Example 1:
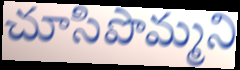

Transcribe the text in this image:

చూసిపొమ్మని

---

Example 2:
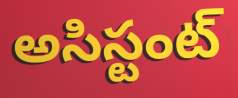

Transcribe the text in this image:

అసిస్టంట్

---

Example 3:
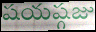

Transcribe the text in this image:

షయష్గజు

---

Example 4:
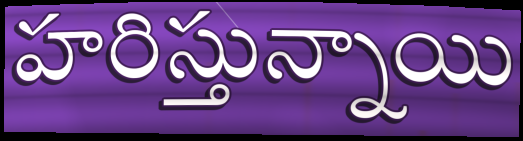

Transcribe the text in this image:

హరిస్తున్నాయి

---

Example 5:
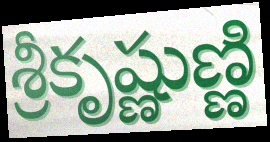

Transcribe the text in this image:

శ్రీకృష్ణుణ్ణి